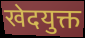
खेदयुक्त